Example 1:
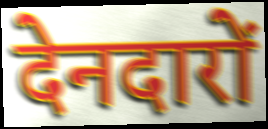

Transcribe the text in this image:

देनदारों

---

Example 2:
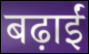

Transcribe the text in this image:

बढ़ाईं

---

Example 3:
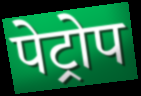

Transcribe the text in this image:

पेट्रोप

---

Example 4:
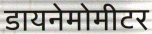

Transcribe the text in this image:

डायनेमोमीटर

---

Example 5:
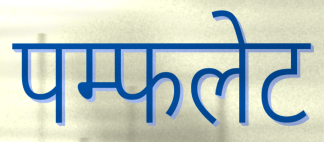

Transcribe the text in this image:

पम्फलेट